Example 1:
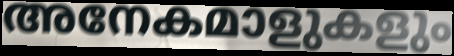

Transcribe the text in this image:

അനേകമാളുകളും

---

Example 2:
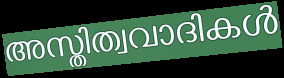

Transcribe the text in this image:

അസ്തിത്വവാദികൾ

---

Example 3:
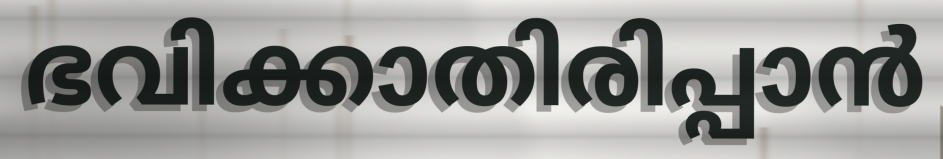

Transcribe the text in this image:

ഭവിക്കാതിരിപ്പാൻ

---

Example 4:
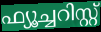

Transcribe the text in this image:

ഫ്യൂച്ചറിസ്റ്റ്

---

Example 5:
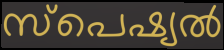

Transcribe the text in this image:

സ്പെഷ്യൽ